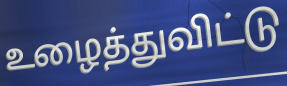
உழைத்துவிட்டு